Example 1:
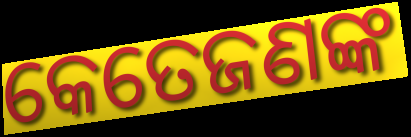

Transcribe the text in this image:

କେତେଜଣଙ୍କ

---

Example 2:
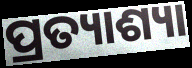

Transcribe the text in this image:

ପ୍ରତ୍ୟାଶ୍ୟା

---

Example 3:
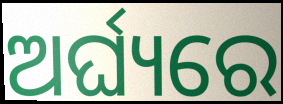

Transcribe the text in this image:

ଅର୍ଘ୍ୟରେ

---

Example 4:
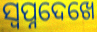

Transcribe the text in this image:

ସ୍ୱପ୍ନଦେଖେ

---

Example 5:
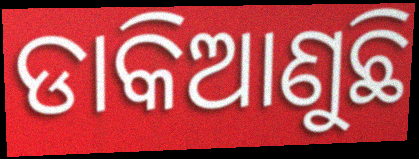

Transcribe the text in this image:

ଡାକିଆଣୁଛି